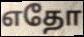
எதோ